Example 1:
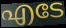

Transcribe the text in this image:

എടേ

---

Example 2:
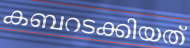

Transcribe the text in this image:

കബറടക്കിയത്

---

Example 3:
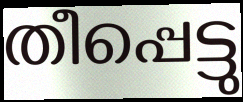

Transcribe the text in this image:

തീപ്പെട്ടു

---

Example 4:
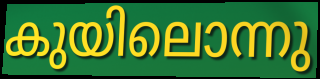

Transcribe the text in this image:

കുയിലൊന്നു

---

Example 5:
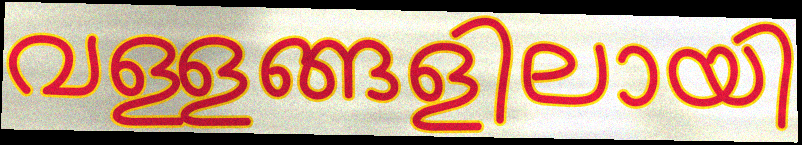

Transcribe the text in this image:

വള്ളങ്ങളിലായി